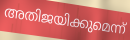
അതിജയിക്കുമെന്ന്